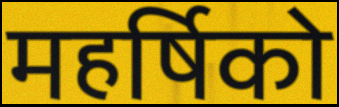
महर्षिको